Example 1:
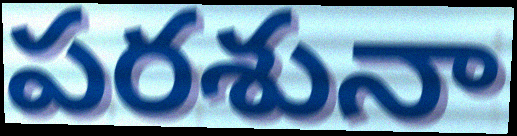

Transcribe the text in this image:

పరశునా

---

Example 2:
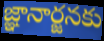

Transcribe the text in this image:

జ్ఞానార్జనకు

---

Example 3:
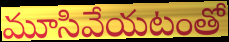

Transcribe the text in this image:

మూసివేయటంతో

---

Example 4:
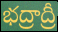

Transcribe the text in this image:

భద్రాద్రీ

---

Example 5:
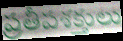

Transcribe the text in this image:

ప్రతీపశక్తులు